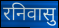
रनिवासु